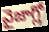
వైజాగ్లో